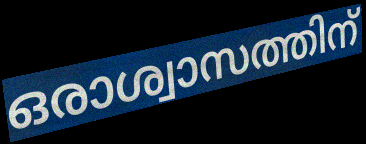
ഒരാശ്വാസത്തിന്